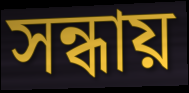
সন্ধায়